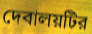
দেবালয়টির